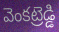
వెంకట్రెడ్డి